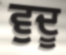
ਵੁਦੂ